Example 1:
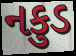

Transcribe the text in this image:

નકુડ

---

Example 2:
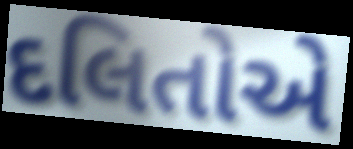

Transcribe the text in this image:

દલિતોએ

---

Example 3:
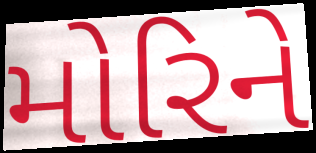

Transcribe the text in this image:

મોરિને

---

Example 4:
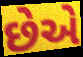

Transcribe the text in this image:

છેએ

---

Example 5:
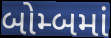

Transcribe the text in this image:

બોમ્બમાં